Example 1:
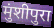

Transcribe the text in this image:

मुंशीपुरा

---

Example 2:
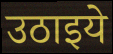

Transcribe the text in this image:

उठाइये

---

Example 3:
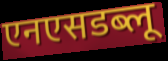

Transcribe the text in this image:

एनएसडब्लू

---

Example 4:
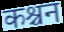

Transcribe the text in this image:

कश्चन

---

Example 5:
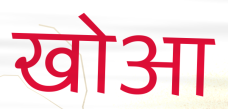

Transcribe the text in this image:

खोआ